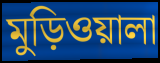
মুড়িওয়ালা